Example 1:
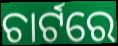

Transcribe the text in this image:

ଚାର୍ଟରେ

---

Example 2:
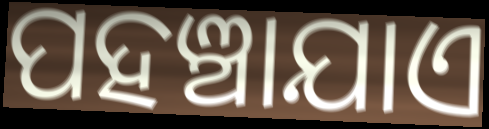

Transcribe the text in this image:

ପହଞ୍ଚାଯାଏ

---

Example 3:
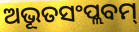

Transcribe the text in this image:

ଅଭୂତସଂପ୍ଲବମ୍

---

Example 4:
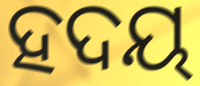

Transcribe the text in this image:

ହଦୟ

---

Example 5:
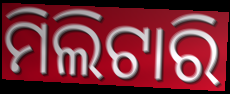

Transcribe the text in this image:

ମିଲିଟାରି